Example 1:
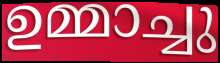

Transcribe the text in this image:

ഉമ്മാച്ചു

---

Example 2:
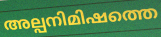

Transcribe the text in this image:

അല്പനിമിഷത്തെ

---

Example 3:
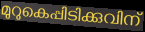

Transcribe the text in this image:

മുറുകെപ്പിടിക്കുവിന്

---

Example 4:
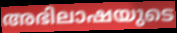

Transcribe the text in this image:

അഭിലാഷയുടെ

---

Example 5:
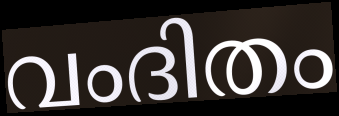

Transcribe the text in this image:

വംദിതം